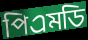
পিএমডি